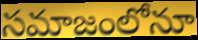
సమాజంలోనూ